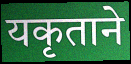
यकृताने